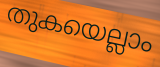
തുകയെല്ലാം